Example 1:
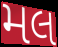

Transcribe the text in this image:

મલ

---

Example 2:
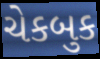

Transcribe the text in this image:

ચેકબુક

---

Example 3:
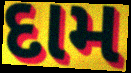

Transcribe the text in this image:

દામ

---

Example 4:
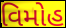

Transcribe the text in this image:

વિમોહ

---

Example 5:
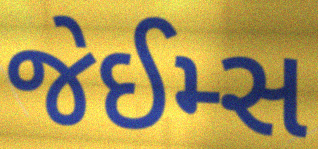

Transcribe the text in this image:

જેઈમ્સ